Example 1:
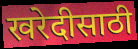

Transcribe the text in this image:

खरेदीसाठी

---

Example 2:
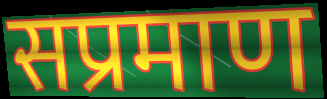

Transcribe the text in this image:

सप्रमाण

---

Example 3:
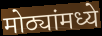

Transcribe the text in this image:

मोठ्यांमध्ये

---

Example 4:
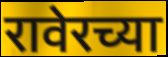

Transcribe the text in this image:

रावेरच्या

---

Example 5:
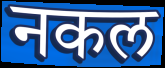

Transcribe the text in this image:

नकल